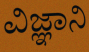
ವಿಜ್ಞಾನಿ